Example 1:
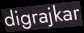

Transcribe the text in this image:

digrajkar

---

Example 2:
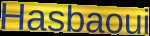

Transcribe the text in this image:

Hasbaoui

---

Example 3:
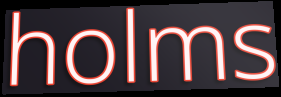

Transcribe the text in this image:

holms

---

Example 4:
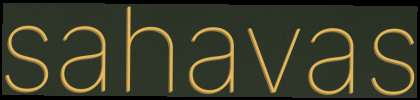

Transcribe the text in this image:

sahavas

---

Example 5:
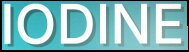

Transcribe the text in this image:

IODINE